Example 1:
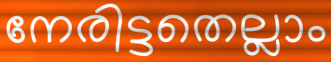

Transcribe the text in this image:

നേരിട്ടതെല്ലാം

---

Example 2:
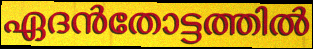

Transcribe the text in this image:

ഏദൻതോട്ടത്തിൽ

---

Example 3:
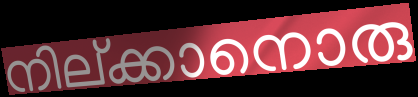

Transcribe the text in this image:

നില്ക്കാനൊരു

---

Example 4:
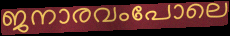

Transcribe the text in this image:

ജനാരവംപോലെ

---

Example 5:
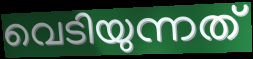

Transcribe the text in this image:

വെടിയുന്നത്